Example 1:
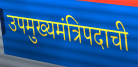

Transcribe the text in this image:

उपमुख्यमंत्रिपदाची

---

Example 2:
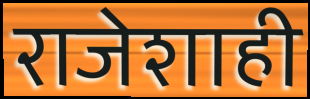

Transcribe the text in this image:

राजेशाही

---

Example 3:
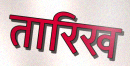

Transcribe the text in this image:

तारिख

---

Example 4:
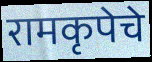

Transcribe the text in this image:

रामकृपेचे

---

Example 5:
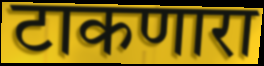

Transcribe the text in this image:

टाकणारा